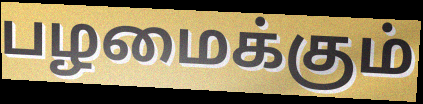
பழமைக்கும்